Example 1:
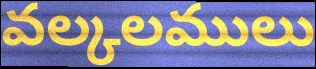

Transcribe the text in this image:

వల్కలములు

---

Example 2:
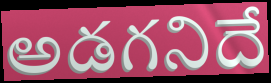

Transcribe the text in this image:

అడగనిదే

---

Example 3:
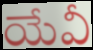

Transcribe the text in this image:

యేవీ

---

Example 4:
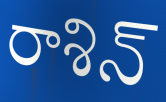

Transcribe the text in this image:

రాశిన్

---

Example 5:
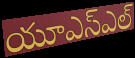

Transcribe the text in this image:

యూఎస్ఎల్